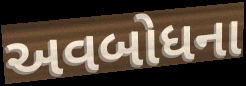
અવબોધના